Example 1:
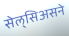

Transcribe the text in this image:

सेल्सिअसने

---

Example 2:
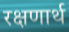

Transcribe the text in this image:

रक्षणार्थ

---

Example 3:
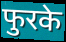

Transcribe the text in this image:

फुरके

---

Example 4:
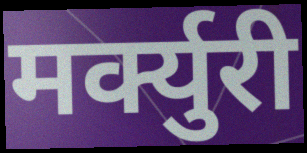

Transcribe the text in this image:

मर्क्युरी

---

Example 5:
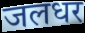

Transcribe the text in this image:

जलधर